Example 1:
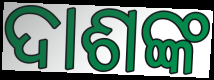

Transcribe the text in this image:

ଦାଶଙ୍କ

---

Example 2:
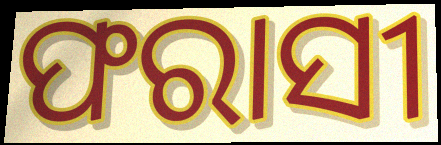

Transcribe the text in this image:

ଫରାସୀ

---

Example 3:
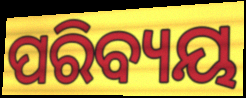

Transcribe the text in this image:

ପରିବ୍ୟୟ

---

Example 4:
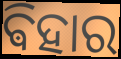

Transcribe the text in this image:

ଵିହାର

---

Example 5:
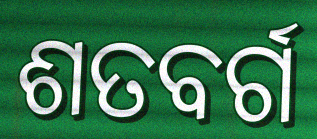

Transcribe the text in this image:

ଶତବର୍ଗ